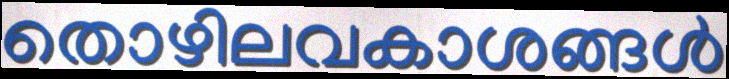
തൊഴിലവകാശങ്ങൾ